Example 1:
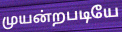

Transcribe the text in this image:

முயன்றபடியே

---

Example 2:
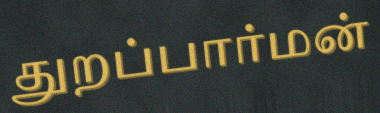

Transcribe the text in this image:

துறப்பார்மன்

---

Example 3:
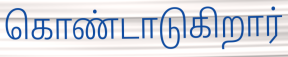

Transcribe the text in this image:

கொண்டாடுகிறார்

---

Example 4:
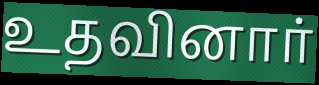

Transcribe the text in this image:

உதவினார்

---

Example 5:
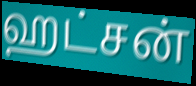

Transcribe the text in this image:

ஹட்சன்